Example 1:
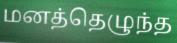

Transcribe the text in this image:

மனத்தெழுந்த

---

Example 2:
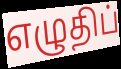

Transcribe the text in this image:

எழுதிப்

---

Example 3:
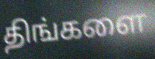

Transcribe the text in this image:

திங்களை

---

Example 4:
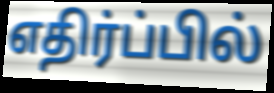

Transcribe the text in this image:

எதிர்ப்பில்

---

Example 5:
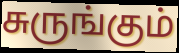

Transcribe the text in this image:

சுருங்கும்